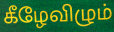
கீழேவிழும்